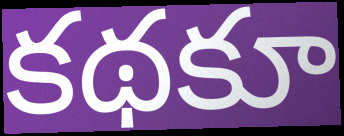
కథకూ